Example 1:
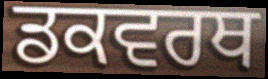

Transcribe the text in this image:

ਡਕਵਰਥ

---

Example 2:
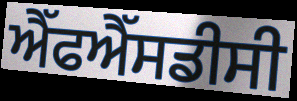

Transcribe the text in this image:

ਐੱਫਐੱਸਡੀਸੀ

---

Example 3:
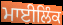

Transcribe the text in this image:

ਮਾਈਲਿੰਕ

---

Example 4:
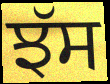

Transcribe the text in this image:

ਝੱਸ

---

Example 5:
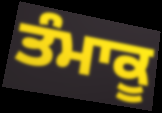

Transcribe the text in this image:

ਤੰਮਾਕੂ